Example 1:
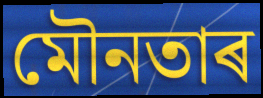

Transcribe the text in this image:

মৌনতাৰ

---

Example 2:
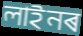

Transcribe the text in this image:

লাইনৰ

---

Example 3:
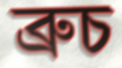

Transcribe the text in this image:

ব্ৰুচ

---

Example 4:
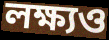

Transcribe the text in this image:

লক্ষ্যও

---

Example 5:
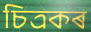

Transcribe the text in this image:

চিত্ৰকৰ